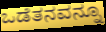
ಒಡೆತನವನ್ನೂ